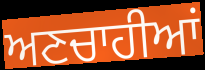
ਅਣਚਾਹੀਆਂ